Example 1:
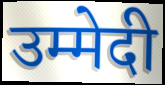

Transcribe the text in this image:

उम्मेदी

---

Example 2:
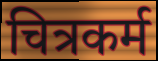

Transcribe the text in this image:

चित्रकर्म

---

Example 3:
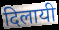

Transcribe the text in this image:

दिलायी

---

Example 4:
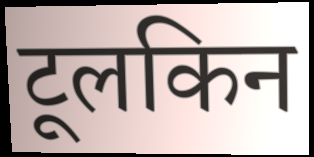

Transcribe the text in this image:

टूलकिन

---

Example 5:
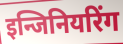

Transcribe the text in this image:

इन्जिनियरिंग